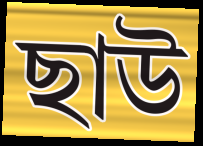
ছাউ